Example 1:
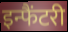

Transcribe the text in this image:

इन्फैंटरी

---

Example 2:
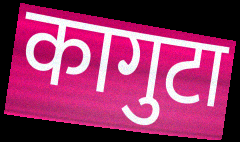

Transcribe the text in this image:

कागुटा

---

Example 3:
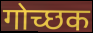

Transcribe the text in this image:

गोच्छक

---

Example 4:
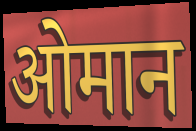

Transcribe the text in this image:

ओमान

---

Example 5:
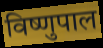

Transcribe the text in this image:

विष्णुपाल